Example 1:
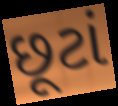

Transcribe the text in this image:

છૂટાં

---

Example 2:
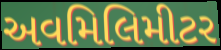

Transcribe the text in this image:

અવમિલિમીટર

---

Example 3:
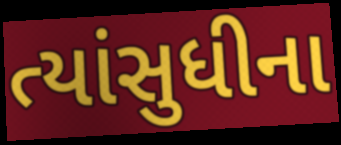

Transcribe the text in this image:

ત્યાંસુધીના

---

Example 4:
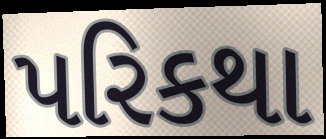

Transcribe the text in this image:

પરિકથા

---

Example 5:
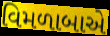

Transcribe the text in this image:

વિમળાબાએ